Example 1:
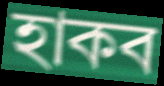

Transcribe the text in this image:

হাকব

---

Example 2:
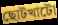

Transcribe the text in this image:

ছোটখাটো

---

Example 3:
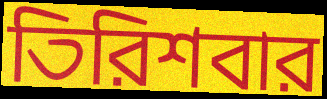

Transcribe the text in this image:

তিরিশবার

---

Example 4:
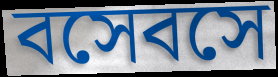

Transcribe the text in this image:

বসেবসে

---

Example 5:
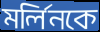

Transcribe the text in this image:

মর্লিনকে